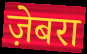
ज़ेबरा